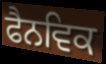
ਫੈਨਵਿਕ